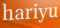
hariyu